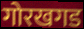
गोरखगड